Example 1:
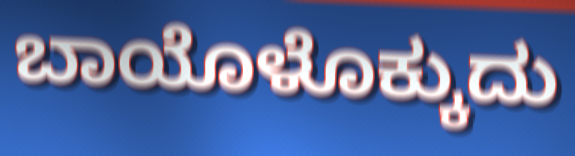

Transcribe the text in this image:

ಬಾಯೊಳೊಕ್ಕುದು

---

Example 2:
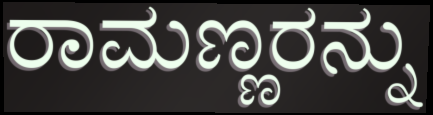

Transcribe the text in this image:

ರಾಮಣ್ಣರನ್ನು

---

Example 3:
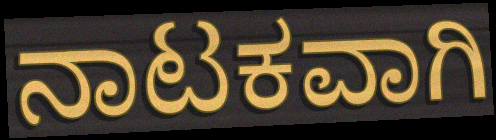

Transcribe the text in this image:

ನಾಟಕವಾಗಿ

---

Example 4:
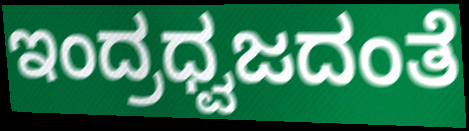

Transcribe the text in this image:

ಇಂದ್ರಧ್ವಜದಂತೆ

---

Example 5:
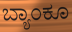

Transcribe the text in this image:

ಬ್ಯಾಂಕೂ